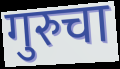
गुरुचा